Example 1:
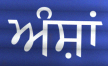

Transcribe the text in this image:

ਅੰਸ਼ਾਂ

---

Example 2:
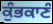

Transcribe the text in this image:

ਕੁੰਭਕਾਣੰ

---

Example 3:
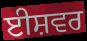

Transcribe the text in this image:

ਈਸ਼ਵਰ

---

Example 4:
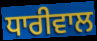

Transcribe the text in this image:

ਧਾਰੀਵਾਲ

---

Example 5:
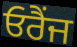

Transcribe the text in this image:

ਓਰੈਂਜ